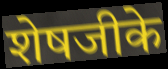
शेषजीके